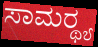
ಸಾಮರ್‍ಥ್ಯ